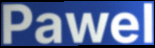
Pawel